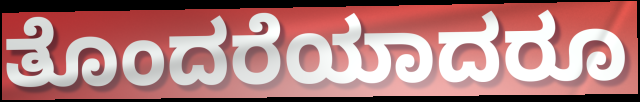
ತೊಂದರೆಯಾದರೂ